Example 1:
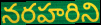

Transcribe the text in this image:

నరహరిని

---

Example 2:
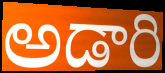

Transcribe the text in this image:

అడారి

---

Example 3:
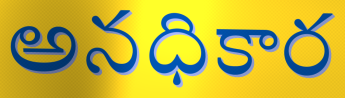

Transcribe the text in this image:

అనధికార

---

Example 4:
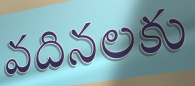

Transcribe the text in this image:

వదినలకు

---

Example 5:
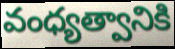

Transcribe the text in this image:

వంధ్యత్వానికి